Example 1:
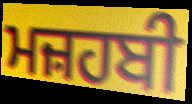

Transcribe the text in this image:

ਮਜ਼ਹਬੀ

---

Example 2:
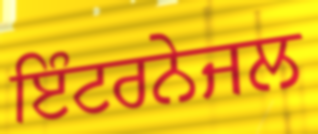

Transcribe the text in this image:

ਇੰਟਰਨੇਜਲ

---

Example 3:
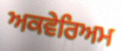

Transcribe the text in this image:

ਅਕਵੇਰਿਅਮ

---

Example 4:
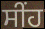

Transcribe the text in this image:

ਸੀਂਹ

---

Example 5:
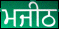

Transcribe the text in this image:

ਮਜੀਠ